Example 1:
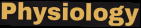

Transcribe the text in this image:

Physiology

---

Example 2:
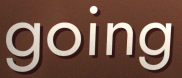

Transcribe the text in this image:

going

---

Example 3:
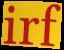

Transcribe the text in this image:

irf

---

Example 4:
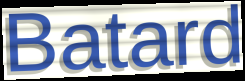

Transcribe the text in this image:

Batard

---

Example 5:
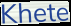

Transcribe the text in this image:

Khete